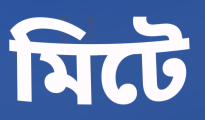
মিটে